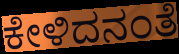
ಕೇಳಿದನಂತೆ